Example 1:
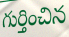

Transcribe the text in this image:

గుర్తించిన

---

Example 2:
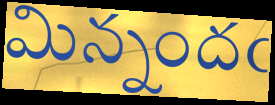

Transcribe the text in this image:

మిన్నందఁ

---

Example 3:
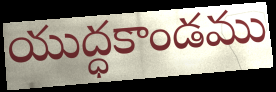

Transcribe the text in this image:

యుద్ధకాండము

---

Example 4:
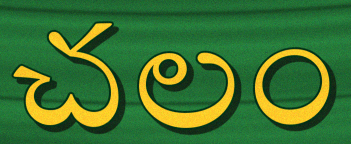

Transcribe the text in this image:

చలం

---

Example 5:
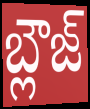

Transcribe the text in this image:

బ్లౌజ్